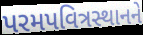
પરમપવિત્રસ્થાનને